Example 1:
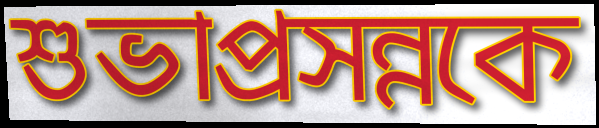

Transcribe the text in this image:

শুভাপ্রসন্নকে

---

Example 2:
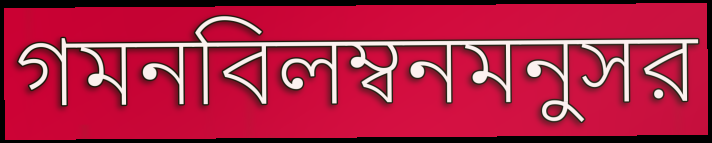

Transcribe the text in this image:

গমনবিলম্বনমনুসর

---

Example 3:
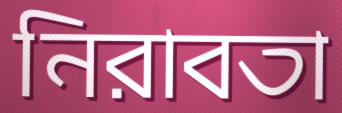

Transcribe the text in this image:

নিরাবতা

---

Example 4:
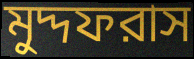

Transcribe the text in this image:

মুদ্দফরাস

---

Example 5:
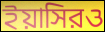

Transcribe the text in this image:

ইয়াসিরও